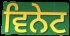
ਵਿਨੇਟ